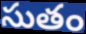
సుతం